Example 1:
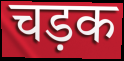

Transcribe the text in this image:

चड़क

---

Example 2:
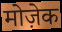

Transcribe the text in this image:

मोज़ेक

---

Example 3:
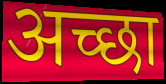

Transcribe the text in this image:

अच्छा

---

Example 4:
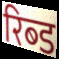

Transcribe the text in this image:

रिब्ड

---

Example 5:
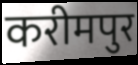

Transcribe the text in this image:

करीमपुर